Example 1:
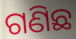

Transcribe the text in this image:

ଗଣିଛ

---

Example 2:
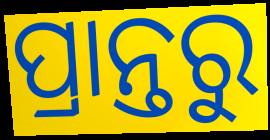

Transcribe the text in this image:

ପ୍ରାନ୍ତରୁ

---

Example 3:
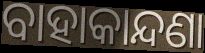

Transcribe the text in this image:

ବାହାକାନ୍ଦଣା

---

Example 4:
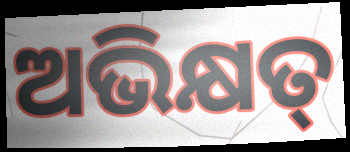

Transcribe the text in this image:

ଅଭିକ୍ଷତ୍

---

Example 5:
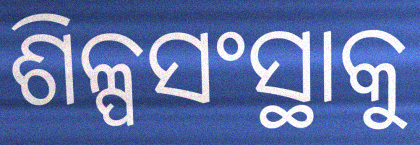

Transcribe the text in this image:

ଶିଳ୍ପସଂସ୍ଥାକୁ